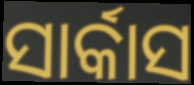
ସାର୍କାସ